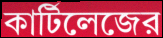
কার্টিলেজের